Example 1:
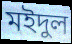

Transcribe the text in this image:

মইদুল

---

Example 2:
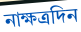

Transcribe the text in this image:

নাক্ষত্রদিন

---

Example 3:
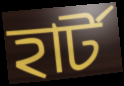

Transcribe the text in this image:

হার্ট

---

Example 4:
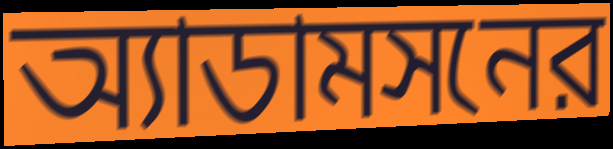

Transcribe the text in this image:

অ্যাডামসনের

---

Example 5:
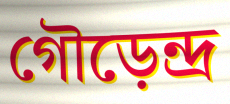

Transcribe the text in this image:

গৌড়েন্দ্র